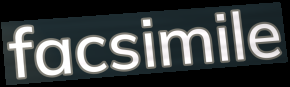
facsimile